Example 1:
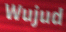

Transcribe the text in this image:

Wujud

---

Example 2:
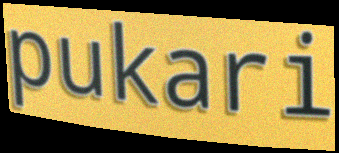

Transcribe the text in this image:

pukari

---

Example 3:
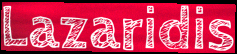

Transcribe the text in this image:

Lazaridis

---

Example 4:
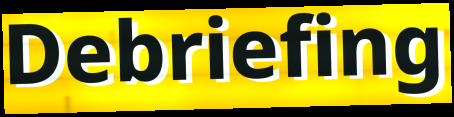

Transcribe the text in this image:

Debriefing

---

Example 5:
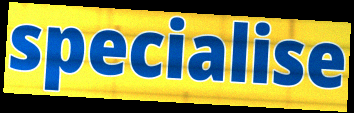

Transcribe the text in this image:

specialise